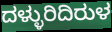
ದಳ್ಳುರಿದಿರುಳ